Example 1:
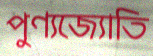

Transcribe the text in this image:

পুণ্যজ্যোতি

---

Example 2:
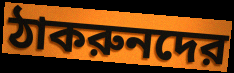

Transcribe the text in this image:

ঠাকরুনদের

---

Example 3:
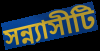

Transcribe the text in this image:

সন্ন্যাসীটি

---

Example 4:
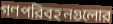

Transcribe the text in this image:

গণপরিবহনগুলোর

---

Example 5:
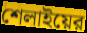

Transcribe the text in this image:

শেলাইয়ের